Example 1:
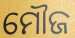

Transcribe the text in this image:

ମୌଜ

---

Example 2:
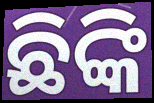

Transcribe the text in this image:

ଛିଙ୍କି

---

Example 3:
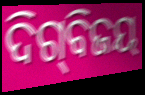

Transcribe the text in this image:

ଦିଗ୍‍ବିଜୟ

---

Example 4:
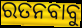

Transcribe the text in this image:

ରତନବାବୁ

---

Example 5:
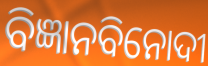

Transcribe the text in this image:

ବିଜ୍ଞାନବିନୋଦୀ